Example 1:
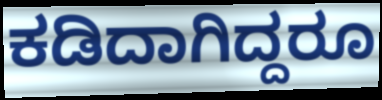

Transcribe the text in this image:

ಕಡಿದಾಗಿದ್ದರೂ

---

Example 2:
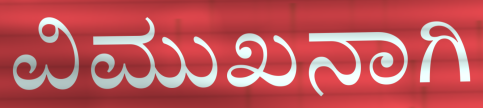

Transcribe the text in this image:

ವಿಮುಖನಾಗಿ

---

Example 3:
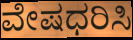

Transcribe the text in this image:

ವೇಷಧರಿಸಿ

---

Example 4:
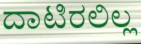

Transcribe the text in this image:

ದಾಟಿರಲಿಲ್ಲ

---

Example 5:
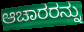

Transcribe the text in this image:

ಆಚಾರರನ್ನು